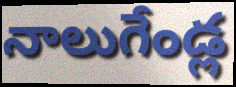
నాలుగేండ్ల